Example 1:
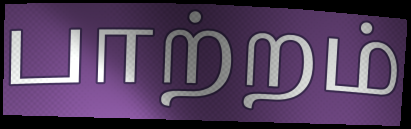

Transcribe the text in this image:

பாற்றம்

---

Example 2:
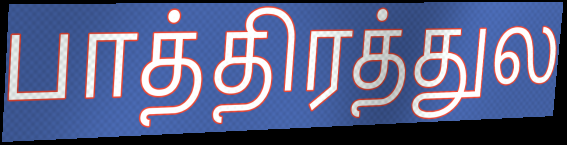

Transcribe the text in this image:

பாத்திரத்துல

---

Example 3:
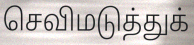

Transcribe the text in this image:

செவிமடுத்துக்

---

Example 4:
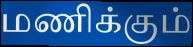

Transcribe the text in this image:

மணிக்கும்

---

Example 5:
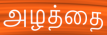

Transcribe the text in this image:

அழத்தை